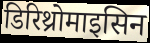
डिरिथ्रोमाइसिन